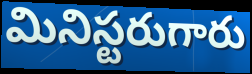
మినిస్టరుగారు